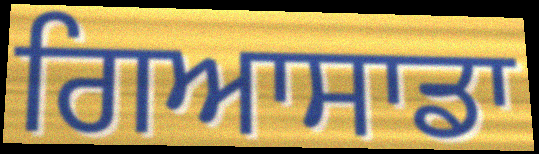
ਗਿਆਸਾਡਾ